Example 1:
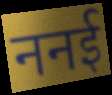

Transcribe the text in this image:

ननई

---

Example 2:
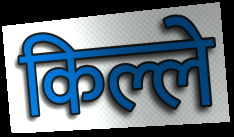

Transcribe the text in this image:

किल्ले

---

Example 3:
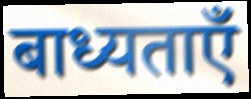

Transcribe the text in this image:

बाध्यताएँ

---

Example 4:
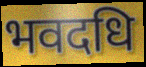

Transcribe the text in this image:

भवदधि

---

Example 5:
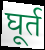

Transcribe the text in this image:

घूर्त